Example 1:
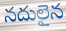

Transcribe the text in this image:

నదులైన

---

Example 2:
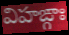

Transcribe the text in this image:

విహఙ్గాః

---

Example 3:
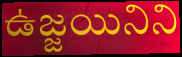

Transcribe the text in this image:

ఉజ్జయినిని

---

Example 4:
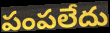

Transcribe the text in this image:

పంపలేదు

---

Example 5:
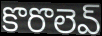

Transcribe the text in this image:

కొరొలెవ్